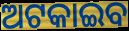
ଅଟକାଇବ